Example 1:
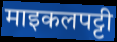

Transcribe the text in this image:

माइकलपट्टी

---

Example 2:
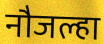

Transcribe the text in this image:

नौजल्हा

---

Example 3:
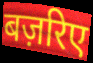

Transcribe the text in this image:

बज़रिए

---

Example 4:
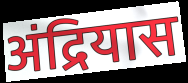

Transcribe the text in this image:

अंद्रियास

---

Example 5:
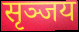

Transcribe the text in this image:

सृञ्जय